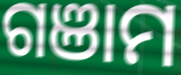
ଗଞାମ